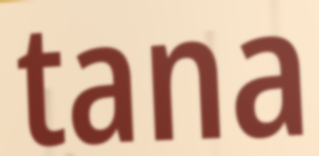
tana